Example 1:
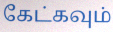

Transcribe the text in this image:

கேட்கவும்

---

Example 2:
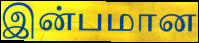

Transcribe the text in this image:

இன்பமான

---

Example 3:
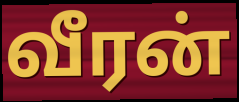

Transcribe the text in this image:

வீரன்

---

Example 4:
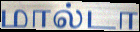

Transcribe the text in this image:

மால்டா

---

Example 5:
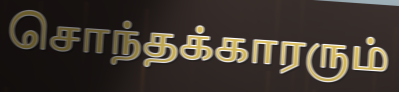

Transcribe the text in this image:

சொந்தக்காரரும்